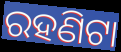
ରହଣିଟା